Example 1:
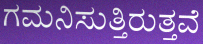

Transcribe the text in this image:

ಗಮನಿಸುತ್ತಿರುತ್ತವೆ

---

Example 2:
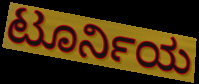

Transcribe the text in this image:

ಟೂರ್ನಿಯ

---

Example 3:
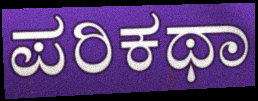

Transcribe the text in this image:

ಪರಿಕಥಾ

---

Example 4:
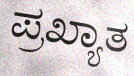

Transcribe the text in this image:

ಪ್ರಖ್ಯಾತ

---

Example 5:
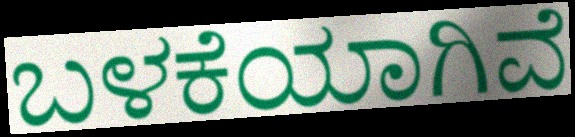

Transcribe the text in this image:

ಬಳಕೆಯಾಗಿವೆ